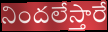
నిందలేస్తారే